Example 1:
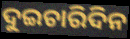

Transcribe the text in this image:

ଦୁଇଚାରିଦିନ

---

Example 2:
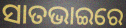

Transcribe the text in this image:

ସାତଭାଇରେ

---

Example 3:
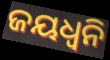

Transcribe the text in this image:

ଜୟଧ୍ୱନି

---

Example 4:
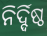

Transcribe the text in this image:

ନିର୍ଦ୍ଦିଷ୍ଠ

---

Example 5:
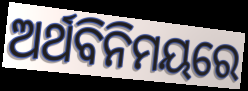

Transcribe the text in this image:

ଅର୍ଥବିନିମୟରେ